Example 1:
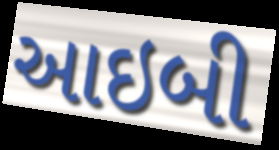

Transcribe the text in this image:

આઇબી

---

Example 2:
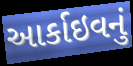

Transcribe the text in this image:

આર્કાઇવનું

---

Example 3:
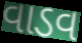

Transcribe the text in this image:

વાડવ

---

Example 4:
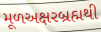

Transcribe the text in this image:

મૂળઅક્ષરબ્રહ્મથી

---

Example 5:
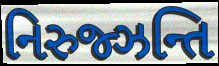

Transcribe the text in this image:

નિરુજ્ઝન્તિ